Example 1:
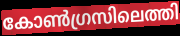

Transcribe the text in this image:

കോൺഗ്രസിലെത്തി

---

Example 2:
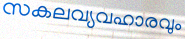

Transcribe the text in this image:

സകലവ്യവഹാരവും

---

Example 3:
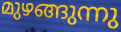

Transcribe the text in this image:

മുഴങ്ങുന്നു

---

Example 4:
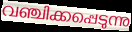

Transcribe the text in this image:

വഞ്ചിക്കപ്പെടുന്നു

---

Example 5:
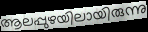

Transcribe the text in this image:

ആലപ്പുഴയിലായിരുന്നു